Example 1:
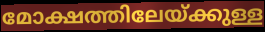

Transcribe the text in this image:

മോക്ഷത്തിലേയ്ക്കുള്ള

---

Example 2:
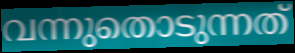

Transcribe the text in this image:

വന്നുതൊടുന്നത്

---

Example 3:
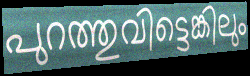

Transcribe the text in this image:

പുറത്തുവിട്ടെങ്കിലും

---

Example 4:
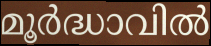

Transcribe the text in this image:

മൂർദ്ധാവിൽ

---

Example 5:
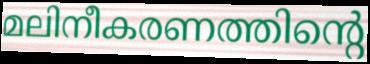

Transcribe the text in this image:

മലിനീകരണത്തിന്റെ